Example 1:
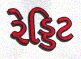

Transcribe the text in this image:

રેડ્ડિટ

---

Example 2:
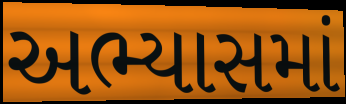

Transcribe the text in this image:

અભ્યાસમાં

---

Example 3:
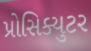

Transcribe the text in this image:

પ્રોસિક્યુટર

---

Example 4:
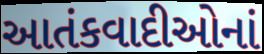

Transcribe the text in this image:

આતંકવાદીઓનાં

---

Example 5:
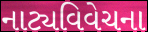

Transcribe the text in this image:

નાટ્યવિવેચના